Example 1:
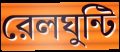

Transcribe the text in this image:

রেলঘুন্টি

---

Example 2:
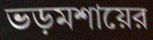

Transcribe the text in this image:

ভড়মশায়ের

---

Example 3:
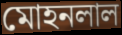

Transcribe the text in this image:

মোহনলাল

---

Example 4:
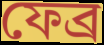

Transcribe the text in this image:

ফেব্র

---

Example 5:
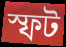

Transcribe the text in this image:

স্ফট